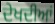
ਦੇਖਦੀਆਂ